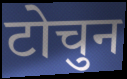
टोचुन